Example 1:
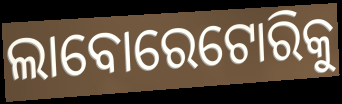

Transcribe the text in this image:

ଲାବୋରେଟୋରିକୁ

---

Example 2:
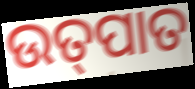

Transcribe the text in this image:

ଉତ୍‌ପାତ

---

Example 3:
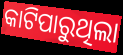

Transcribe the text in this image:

କାଟିପାରୁଥିଲା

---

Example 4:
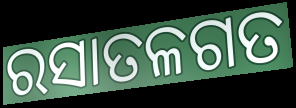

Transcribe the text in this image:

ରସାତଳଗତ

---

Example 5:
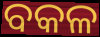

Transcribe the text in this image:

ବକଳ